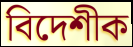
বিদেশীক